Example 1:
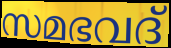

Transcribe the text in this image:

സമഭവദ്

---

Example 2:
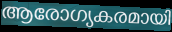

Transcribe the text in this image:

ആരോഗ്യകരമായി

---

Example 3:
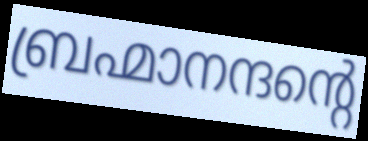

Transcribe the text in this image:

ബ്രഹ്മാനന്ദന്റെ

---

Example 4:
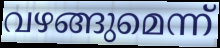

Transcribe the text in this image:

വഴങ്ങുമെന്ന്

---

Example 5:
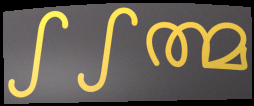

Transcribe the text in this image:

ഽഽത്മ